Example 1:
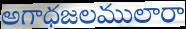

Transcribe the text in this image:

అగాధజలములారా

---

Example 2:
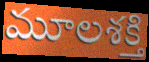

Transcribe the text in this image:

మూలశక్తి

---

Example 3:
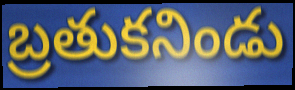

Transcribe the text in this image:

బ్రతుకనిండు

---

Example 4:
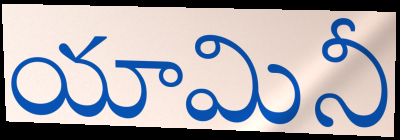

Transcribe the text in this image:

యామినీ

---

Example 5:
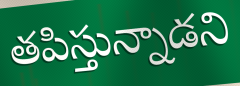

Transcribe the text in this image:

తపిస్తున్నాడని